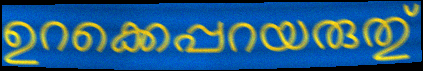
ഉറക്കെപ്പറയരുതു്